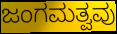
ಜಂಗಮತ್ವವು